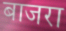
बाजरा